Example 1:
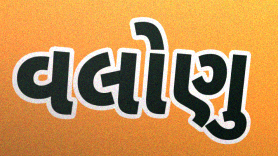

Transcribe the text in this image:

વલોણુ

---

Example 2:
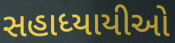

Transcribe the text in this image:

સહાધ્યાયીઓ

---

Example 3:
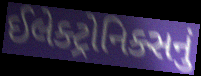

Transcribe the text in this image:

ઈલેક્ટ્રોનિક્સનું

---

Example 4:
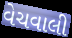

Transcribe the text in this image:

વેચવાલી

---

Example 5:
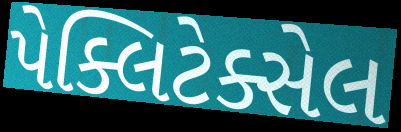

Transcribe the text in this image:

પેક્લિટેક્સેલ